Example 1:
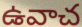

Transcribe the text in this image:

ఉవాచ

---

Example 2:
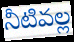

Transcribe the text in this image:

నీటివల్ల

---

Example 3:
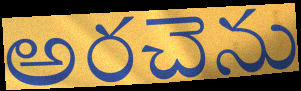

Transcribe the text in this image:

అరచెను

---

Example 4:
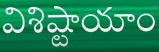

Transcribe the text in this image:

విశిష్టాయాం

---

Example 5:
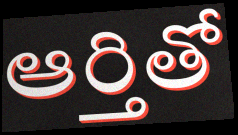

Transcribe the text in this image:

ఆర్తితో